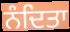
ਨੰਦਿਤਾ